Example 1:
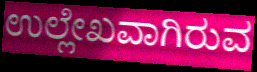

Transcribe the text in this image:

ಉಲ್ಲೇಖವಾಗಿರುವ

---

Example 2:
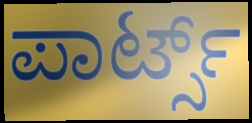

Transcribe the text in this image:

ಪಾರ್ಟ್ಸ್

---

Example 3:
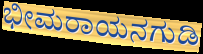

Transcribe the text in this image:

ಭೀಮರಾಯನಗುಡಿ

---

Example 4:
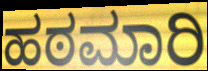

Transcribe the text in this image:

ಹಠಮಾರಿ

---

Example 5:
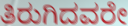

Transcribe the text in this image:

ತಿರುಗಿದವರೇ